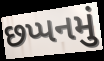
છપ્પનમું